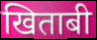
खिताबी